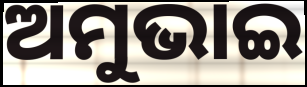
ଅମୁଭାଇ